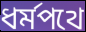
ধর্মপথে